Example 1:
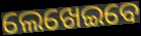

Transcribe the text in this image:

ଲେଖେଇବେ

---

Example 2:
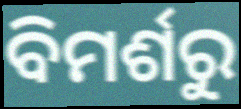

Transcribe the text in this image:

ବିମର୍ଶରୁ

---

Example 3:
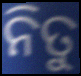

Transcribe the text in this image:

ନିତୁ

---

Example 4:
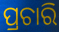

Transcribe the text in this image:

ପ୍ରଚାରି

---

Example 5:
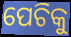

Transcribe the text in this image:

ପେଚିକୁ